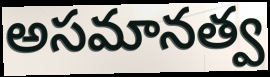
అసమానత్వ